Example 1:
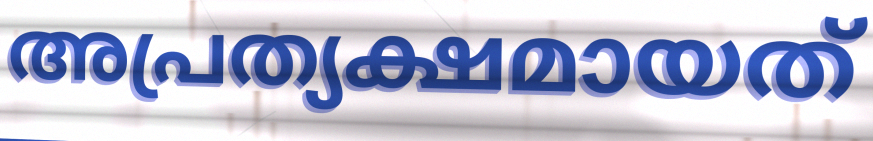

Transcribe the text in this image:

അപ്രത്യക്ഷമായത്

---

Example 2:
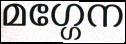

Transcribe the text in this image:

മഗ്ഗേന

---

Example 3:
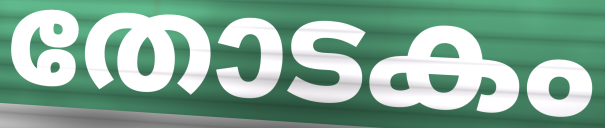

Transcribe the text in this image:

തോടകം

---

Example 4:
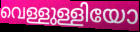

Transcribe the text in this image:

വെള്ളുള്ളിയോ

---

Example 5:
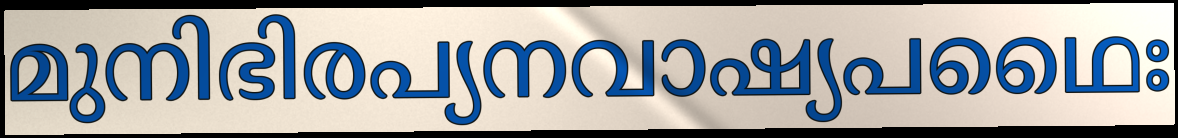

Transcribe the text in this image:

മുനിഭിരപ്യനവാഷ്യപഥൈഃ